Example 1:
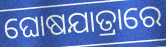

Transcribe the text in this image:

ଘୋଷଯାତ୍ରାରେ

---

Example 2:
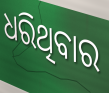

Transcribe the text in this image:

ଧରିଥିବାର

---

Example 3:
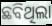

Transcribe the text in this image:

ଛବିଥିଲା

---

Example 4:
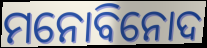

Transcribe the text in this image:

ମନୋବିନୋଦ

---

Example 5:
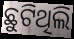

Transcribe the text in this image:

ଛୁଟିଥିଲି